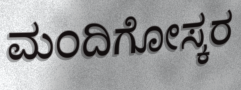
ಮಂದಿಗೋಸ್ಕರ